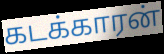
கடக்காரன்